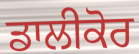
ਡਾਲੀਕੋਰ